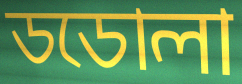
ডডোলা